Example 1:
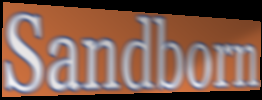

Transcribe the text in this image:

Sandborn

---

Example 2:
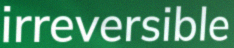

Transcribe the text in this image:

irreversible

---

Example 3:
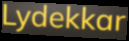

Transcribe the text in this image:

Lydekkar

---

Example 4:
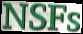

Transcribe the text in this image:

NSFs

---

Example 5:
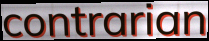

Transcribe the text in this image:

contrarian